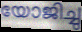
യോജിച്ചു